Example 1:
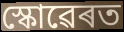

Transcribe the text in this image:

স্কোৱেৰত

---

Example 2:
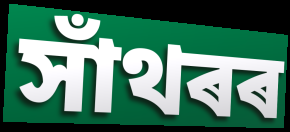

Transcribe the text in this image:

সাঁথৰৰ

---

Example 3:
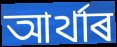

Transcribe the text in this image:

আৰ্থাৰ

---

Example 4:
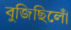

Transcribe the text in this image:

বুজিছিলোঁ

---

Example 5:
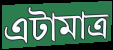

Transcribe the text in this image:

এটামাত্ৰ